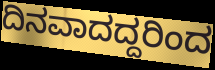
ದಿನವಾದದ್ದರಿಂದ